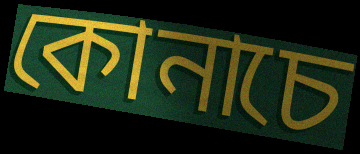
কোনাচে